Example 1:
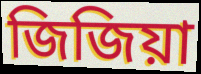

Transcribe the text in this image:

জিজিয়া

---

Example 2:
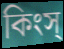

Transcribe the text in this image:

কিংস্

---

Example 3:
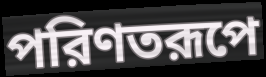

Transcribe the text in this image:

পরিণতরূপে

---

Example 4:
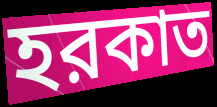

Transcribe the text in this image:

হরকাত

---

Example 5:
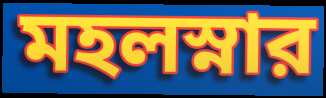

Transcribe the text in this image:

মহলস্নার